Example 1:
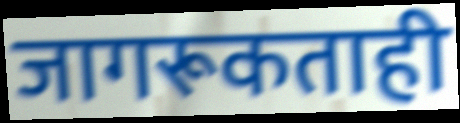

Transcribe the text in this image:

जागरूकताही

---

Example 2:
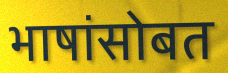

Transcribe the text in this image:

भाषांसोबत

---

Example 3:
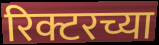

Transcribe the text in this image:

रिक्टरच्या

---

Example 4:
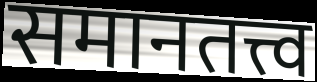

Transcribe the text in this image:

समानतत्त्व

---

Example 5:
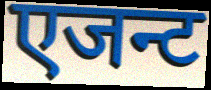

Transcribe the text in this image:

एजन्ट